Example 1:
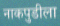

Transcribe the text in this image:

नाकपुडीला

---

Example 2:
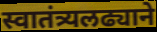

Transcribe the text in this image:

स्वातंत्र्यलढ्याने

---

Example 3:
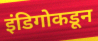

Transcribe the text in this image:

इंडिगोकडून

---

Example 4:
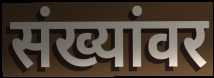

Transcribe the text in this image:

संख्यांवर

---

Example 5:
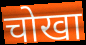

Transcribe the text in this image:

चोखा